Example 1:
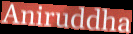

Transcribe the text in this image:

Aniruddha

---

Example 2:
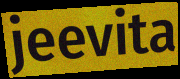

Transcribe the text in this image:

jeevita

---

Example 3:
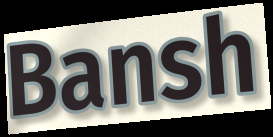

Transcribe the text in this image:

Bansh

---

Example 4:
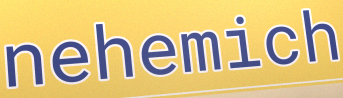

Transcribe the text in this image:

nehemich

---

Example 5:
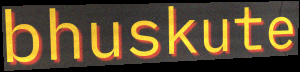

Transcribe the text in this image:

bhuskute